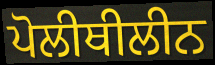
ਪੋਲੀਥੀਲੀਨ